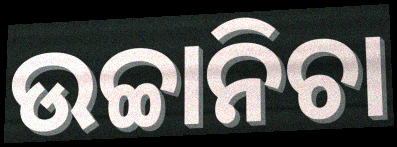
ଉଚ୍ଚାନିଚା